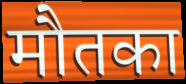
मौतका